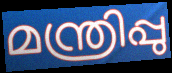
മന്ത്രിപ്പു